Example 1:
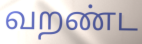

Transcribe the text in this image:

வறண்ட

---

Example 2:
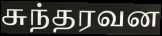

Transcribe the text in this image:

சுந்தரவன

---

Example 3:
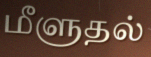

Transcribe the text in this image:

மீளுதல்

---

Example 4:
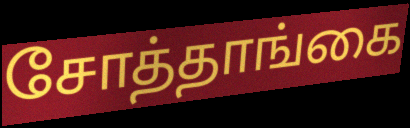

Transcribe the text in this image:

சோத்தாங்கை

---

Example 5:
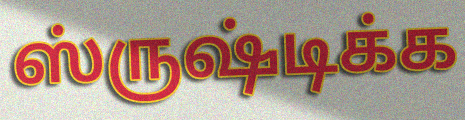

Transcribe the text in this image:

ஸ்ருஷ்டிக்க